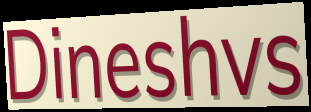
Dineshvs